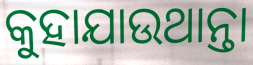
କୁହାଯାଉଥାନ୍ତା